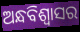
ଅନ୍ଧବିଶ୍ୱାସର